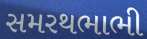
સમરથભાભી